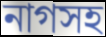
নাগসহ